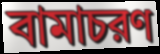
বামাচরণ